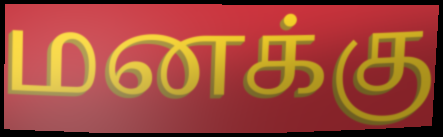
மனக்கு